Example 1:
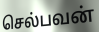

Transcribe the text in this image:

செல்பவன்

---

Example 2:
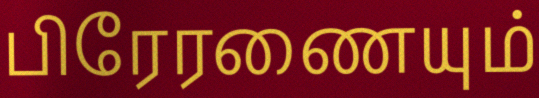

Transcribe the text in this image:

பிரேரணையும்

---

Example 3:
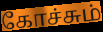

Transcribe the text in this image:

கோச்சும்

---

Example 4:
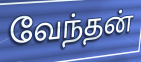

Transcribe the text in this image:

வேந்தன்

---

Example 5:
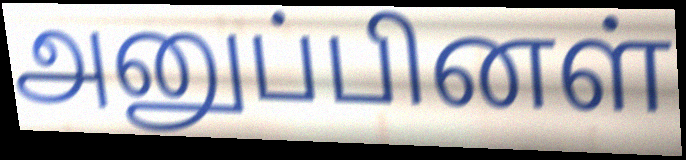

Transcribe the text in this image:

அனுப்பினள்